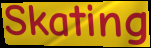
Skating